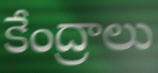
కేంద్రాలు